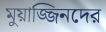
মুয়াজ্জিনদের